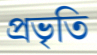
প্রভৃতি